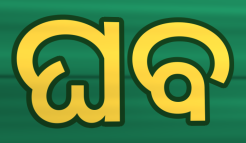
ଘବ